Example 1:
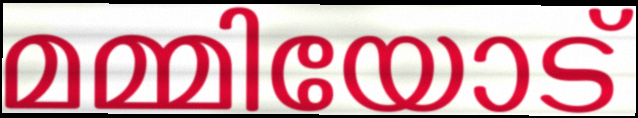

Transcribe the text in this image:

മമ്മിയോട്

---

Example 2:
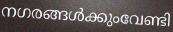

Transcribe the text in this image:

നഗരങ്ങൾക്കുംവേണ്ടി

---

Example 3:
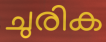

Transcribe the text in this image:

ചുരിക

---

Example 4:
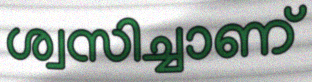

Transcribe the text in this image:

ശ്വസിച്ചാണ്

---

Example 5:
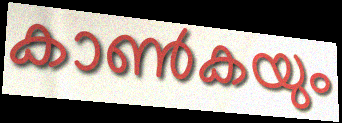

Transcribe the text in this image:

കാൺകയും